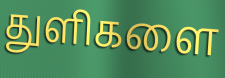
துளிகளை